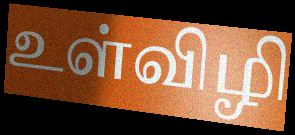
உள்விழி